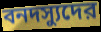
বনদস্যুদের